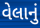
વેલાનું